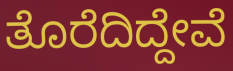
ತೊರೆದಿದ್ದೇವೆ